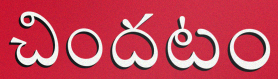
చిందటం